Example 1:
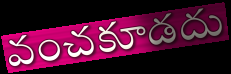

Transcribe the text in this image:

వంచకూడదు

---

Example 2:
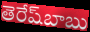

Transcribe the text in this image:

తెరేష్‌బాబు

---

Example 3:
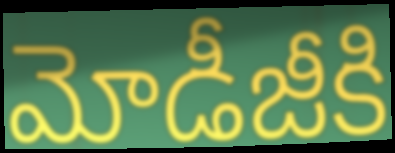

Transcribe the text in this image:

మోడీజీకి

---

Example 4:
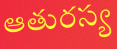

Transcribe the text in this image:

ఆతురస్య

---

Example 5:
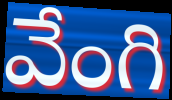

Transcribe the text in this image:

వేంగి